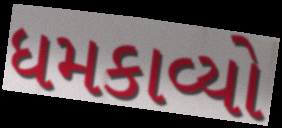
ધમકાવ્યો